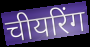
चीयरिंग